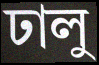
ঢালু